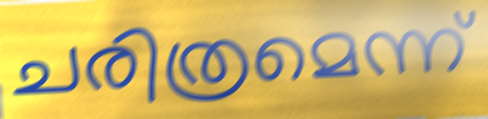
ചരിത്രമെന്ന്